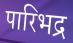
पारिभद्र